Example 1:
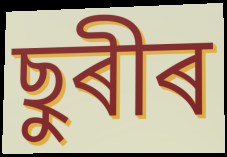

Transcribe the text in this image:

ছুৰীৰ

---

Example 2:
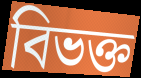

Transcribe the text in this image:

বিভক্ত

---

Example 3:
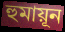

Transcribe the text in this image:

হুমায়ূন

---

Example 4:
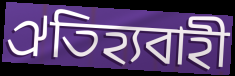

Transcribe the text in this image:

ঐতিহ্যবাহী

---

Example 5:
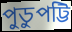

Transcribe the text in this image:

পুডুপট্টি